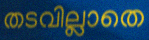
തടവില്ലാതെ